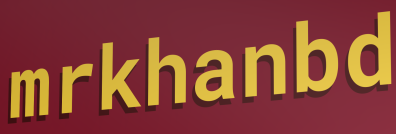
mrkhanbd